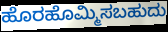
ಹೊರಹೊಮ್ಮಿಸಬಹುದು